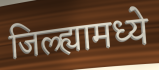
जिल्ह्यामध्ये